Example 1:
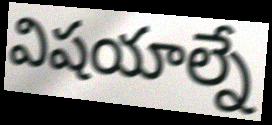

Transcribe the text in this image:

విషయాల్నే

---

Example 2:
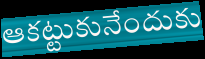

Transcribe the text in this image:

ఆకట్టుకునేందుకు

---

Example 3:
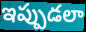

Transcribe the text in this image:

ఇప్పుడలా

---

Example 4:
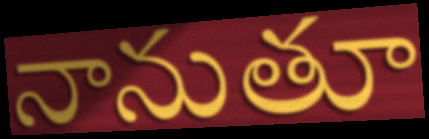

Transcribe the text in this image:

నానుతూ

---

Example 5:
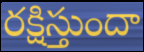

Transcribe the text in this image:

రక్షిస్తుందా